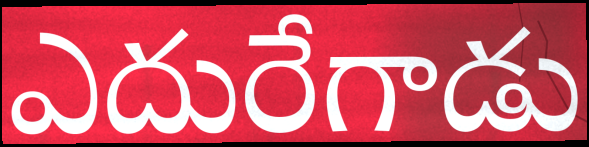
ఎదురేగాడు